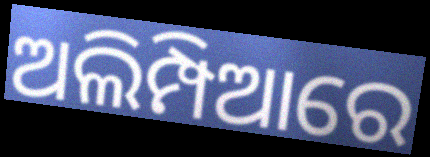
ଅଲିମ୍ପିଆରେ